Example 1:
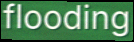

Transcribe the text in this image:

flooding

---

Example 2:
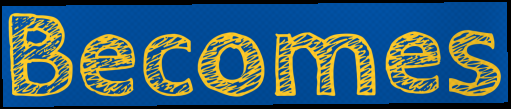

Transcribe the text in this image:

Becomes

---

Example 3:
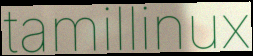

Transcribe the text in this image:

tamillinux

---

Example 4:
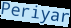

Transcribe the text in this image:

Periyar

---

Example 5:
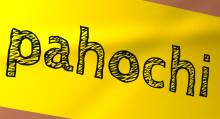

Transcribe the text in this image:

pahochi